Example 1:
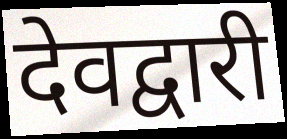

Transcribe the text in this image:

देवद्वारी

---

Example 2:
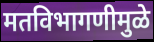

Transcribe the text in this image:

मतविभागणीमुळे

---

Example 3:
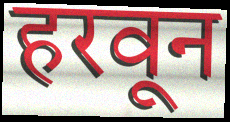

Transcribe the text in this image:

हरवून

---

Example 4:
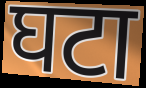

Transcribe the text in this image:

घटा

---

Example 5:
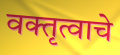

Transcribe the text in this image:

वक्तृत्वाचे